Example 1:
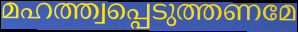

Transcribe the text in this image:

മഹത്ത്വപ്പെടുത്തണമേ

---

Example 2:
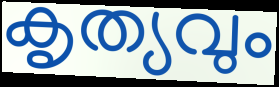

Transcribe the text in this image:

കൃത്യവും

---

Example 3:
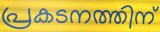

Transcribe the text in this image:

പ്രകടനത്തിന്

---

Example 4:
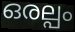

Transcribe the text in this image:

ഒരല്പം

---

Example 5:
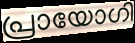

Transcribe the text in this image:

പ്രായോഗി